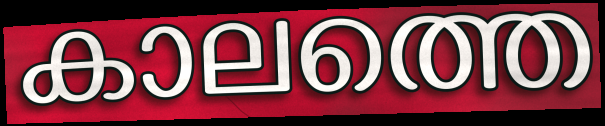
കാലത്തെ